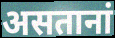
असतानां